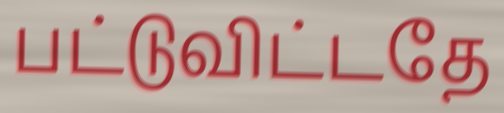
பட்டுவிட்டதே